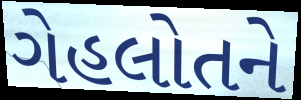
ગેહલોતને